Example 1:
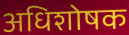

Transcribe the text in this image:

अधिशोषक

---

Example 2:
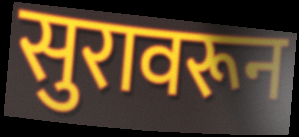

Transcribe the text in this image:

सुरावरून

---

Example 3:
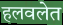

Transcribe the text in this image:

हलवलेत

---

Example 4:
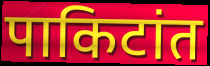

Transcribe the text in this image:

पाकिटांत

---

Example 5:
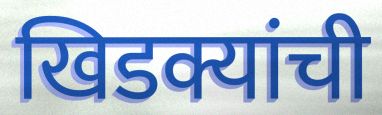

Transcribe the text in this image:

खिडक्यांची